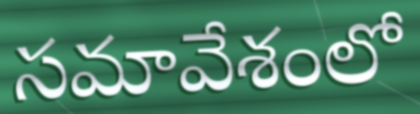
సమావేశంలో